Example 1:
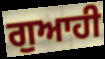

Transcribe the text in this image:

ਗੁਆਹੀ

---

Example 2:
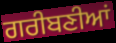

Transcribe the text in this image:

ਗਰੀਬਣੀਆਂ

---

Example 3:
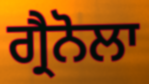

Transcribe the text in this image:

ਗ੍ਰੈਨੋਲਾ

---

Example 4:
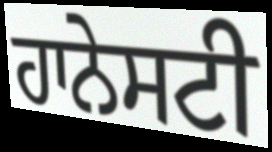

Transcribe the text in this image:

ਹਾਨੇਸਟੀ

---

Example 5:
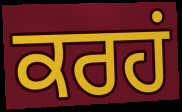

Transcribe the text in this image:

ਕਰਹਂ